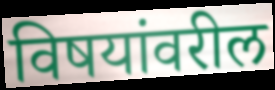
विषयांवरील